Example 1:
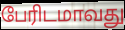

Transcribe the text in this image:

பேரிடமாவது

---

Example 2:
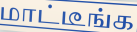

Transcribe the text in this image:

மாட்டீங்க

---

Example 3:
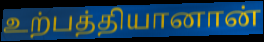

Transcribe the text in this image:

உற்பத்தியானான்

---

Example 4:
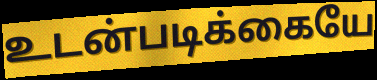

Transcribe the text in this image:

உடன்படிக்கையே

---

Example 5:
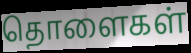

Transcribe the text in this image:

தொளைகள்